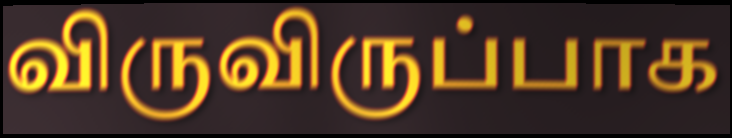
விருவிருப்பாக